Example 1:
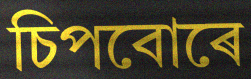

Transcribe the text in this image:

চিপবোৰে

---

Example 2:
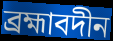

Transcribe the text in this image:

ব্ৰহ্মাবদীন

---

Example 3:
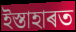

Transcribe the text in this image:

ইস্তাহাৰত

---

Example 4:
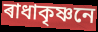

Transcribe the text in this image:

ৰাধাকৃষ্ণনে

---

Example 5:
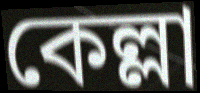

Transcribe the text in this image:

কেল্লা